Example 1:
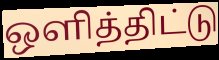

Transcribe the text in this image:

ஒளித்திட்டு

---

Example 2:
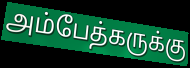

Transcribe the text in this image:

அம்பேத்கருக்கு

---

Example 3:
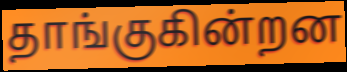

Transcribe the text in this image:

தாங்குகின்றன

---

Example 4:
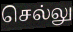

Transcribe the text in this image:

செல்லு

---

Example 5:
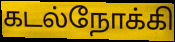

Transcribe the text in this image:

கடல்நோக்கி